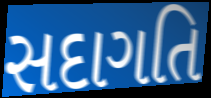
સદાગતિ